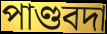
পাণ্ডবদা